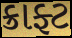
ક્રાફ્ટ